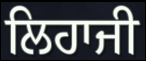
ਲਿਹਾਜੀ